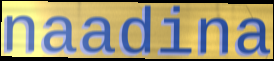
naadina